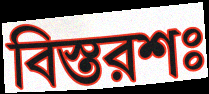
বিস্তরশঃ